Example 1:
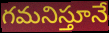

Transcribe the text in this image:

గమనిస్తూనే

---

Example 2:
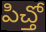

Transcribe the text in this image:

పిచ్తో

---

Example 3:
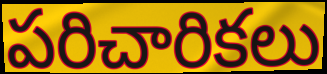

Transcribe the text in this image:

పరిచారికలు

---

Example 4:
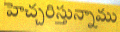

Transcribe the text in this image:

హెచ్చరిస్తున్నాము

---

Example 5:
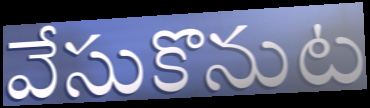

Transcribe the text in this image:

వేసుకొనుట